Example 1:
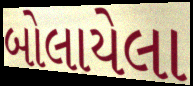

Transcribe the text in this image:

બોલાયેલા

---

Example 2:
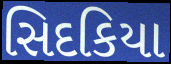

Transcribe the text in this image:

સિદકિયા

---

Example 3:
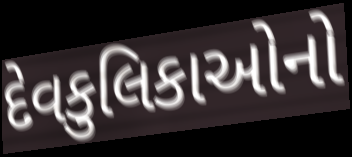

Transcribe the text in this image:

દેવકુલિકાઓનો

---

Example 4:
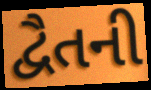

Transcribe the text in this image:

દ્વૈતની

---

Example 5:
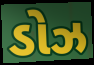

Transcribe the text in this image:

ડોઝ